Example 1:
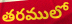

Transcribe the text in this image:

తరములో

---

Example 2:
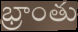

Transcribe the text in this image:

భ్రాంతు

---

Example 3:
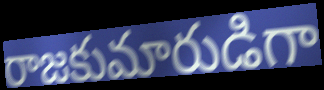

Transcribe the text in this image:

రాజకుమారుడిగా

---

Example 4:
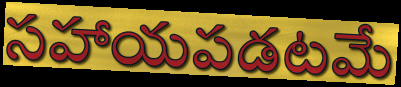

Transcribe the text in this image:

సహాయపడటమే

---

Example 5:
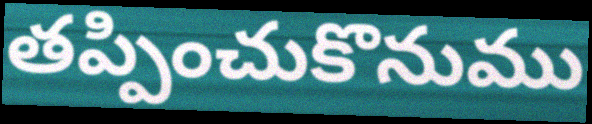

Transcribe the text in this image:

తప్పించుకొనుము